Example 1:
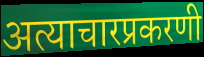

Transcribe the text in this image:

अत्याचारप्रकरणी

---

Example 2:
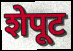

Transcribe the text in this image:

शेपूट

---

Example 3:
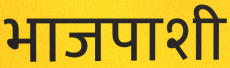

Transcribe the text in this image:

भाजपाशी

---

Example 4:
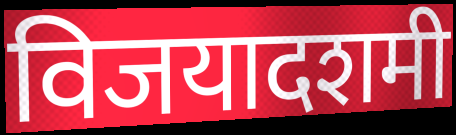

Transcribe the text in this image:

विजयादशमी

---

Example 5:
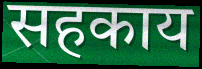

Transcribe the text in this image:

सहकाय